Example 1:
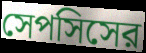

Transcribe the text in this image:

সেপসিসের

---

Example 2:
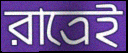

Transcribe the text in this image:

রাত্রেই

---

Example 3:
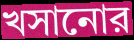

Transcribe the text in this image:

খসানোর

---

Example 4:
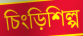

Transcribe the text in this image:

চিংড়িশিল্প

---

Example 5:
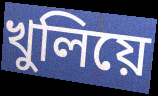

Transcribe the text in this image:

খুলিয়ে